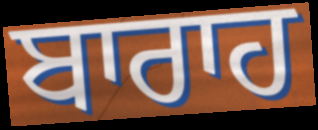
ਬਾਰਾਹ